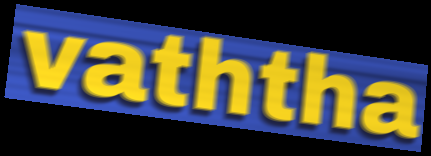
vaththa